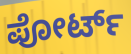
ಪೋರ್ಟ್